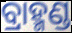
ବ୍ରାହ୍ମଣ୍ଡ